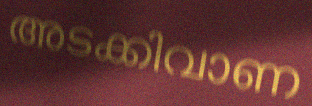
അടക്കിവാണ